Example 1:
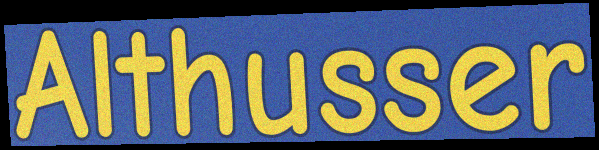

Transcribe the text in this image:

Althusser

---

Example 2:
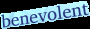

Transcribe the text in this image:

benevolent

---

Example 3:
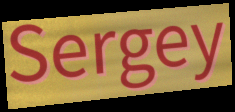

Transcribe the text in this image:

Sergey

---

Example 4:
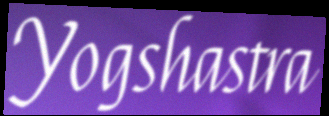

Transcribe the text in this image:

Yogshastra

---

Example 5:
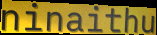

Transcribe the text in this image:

ninaithu